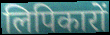
लिपिकारों